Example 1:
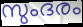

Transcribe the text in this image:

സുംദരം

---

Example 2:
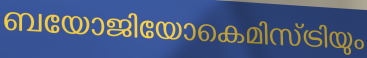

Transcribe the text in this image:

ബയോജിയോകെമിസ്ട്രിയും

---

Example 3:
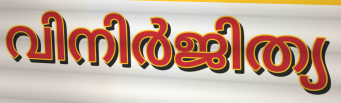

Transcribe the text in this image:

വിനിർജിത്യ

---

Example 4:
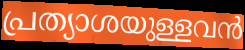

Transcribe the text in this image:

പ്രത്യാശയുള്ളവൻ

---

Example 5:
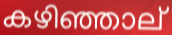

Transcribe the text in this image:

കഴിഞ്ഞാല്